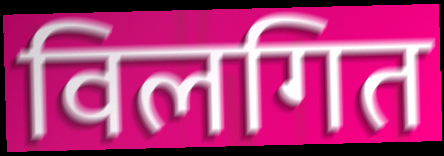
विलगित